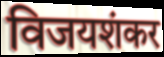
विजयशंकर